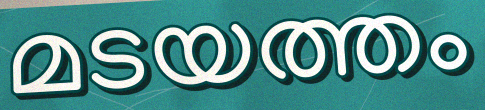
മടയത്തം